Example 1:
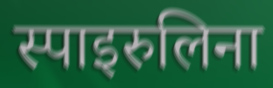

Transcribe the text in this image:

स्पाइरुलिना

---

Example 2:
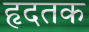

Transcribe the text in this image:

हृदतक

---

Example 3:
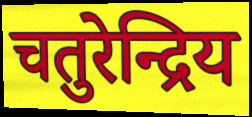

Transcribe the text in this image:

चतुरेन्द्रिय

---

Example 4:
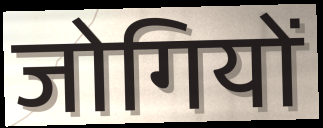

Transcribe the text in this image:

जोगियों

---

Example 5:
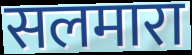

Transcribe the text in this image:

सलमारा